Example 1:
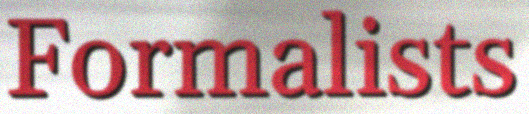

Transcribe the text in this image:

Formalists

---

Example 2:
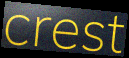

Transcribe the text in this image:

crest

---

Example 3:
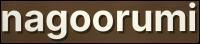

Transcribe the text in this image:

nagoorumi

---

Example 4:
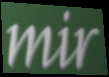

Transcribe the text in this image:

mir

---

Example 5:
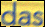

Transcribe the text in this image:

das